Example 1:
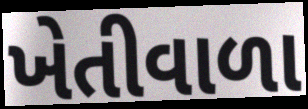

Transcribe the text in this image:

ખેતીવાળા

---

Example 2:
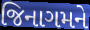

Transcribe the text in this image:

જિનાગમને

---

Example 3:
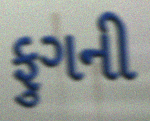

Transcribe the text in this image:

ફુગની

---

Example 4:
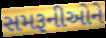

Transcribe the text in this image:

સમરૂનીઓને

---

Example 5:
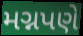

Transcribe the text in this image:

મગ્નપણે